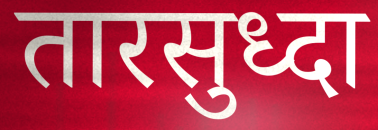
तारसुध्दा